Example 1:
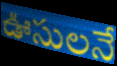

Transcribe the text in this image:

ఊసులనే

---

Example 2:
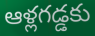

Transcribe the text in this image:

ఆళ్లగడ్డకు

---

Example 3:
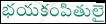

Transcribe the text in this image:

భయకంపితులై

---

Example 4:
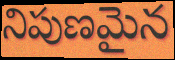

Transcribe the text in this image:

నిపుణమైన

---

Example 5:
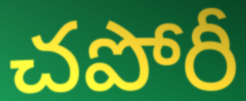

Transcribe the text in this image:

చపోరీ